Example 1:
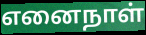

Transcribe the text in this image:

எனைநாள்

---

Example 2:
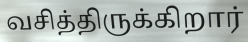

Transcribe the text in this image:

வசித்திருக்கிறார்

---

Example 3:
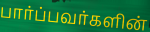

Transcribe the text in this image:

பார்ப்பவர்களின்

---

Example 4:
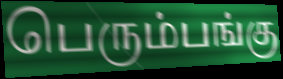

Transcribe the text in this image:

பெரும்பங்கு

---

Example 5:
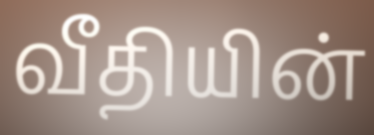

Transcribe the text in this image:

வீதியின்